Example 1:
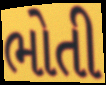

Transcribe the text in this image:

ભોતી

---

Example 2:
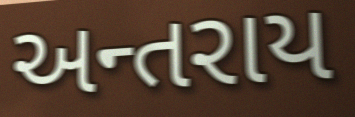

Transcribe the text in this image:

અન્તરાય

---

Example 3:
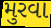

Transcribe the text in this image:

મુરવા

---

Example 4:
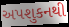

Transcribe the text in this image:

અપશુકનથી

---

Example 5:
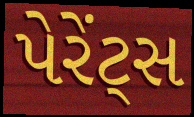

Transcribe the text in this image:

પેરેંટ્સ